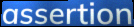
assertion